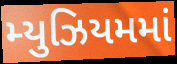
મ્યુઝિયમમાં